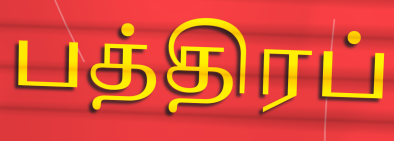
பத்திரப்